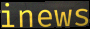
inews